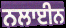
ਨਲਾਈਨ